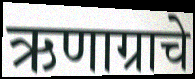
ऋणाग्राचे